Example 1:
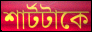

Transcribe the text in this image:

শার্টটাকে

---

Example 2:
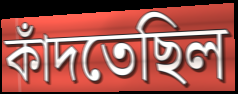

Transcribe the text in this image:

কাঁদতেছিল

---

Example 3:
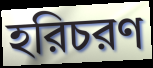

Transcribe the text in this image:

হরিচরণ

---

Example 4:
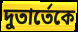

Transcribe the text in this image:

দুতার্তেকে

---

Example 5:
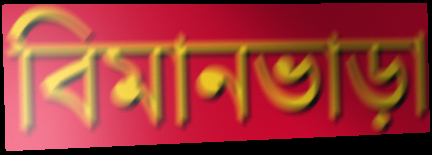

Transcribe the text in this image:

বিমানভাড়া